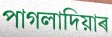
পাগলাদিয়াৰ